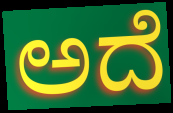
ಅದೆ